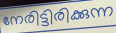
നേരിട്ടിരിക്കുന്ന